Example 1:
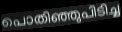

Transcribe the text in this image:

പൊതിഞ്ഞുപിടിച്ച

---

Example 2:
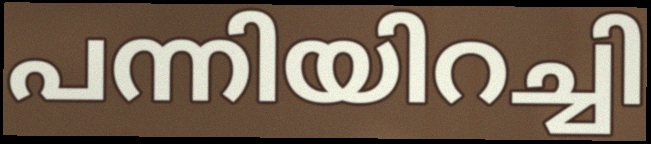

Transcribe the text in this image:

പന്നിയിറച്ചി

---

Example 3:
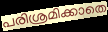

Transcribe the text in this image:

പരിശ്രമിക്കാതെ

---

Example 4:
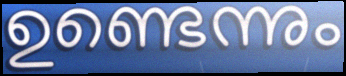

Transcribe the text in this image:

ഉണ്ടെന്നും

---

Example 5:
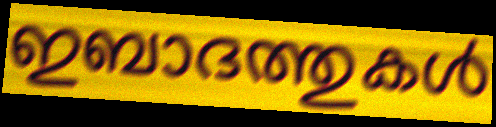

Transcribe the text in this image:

ഇബാദത്തുകൾ